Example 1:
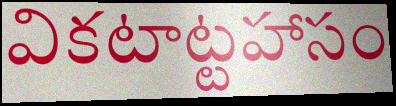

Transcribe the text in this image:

వికటాట్టహాసం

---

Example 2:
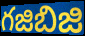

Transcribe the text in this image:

గజిబిజి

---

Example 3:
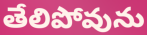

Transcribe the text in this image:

తేలిపోవును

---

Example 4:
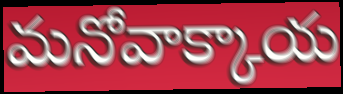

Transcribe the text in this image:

మనోవాక్కాయ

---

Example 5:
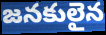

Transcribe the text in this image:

జనకులైన